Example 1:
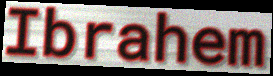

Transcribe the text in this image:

Ibrahem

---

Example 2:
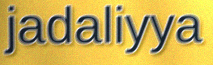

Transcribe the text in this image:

jadaliyya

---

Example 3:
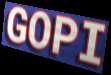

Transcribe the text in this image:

GOPI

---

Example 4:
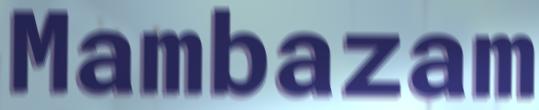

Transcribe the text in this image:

Mambazam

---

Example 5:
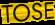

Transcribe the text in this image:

TOSE